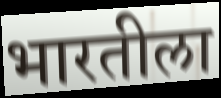
भारतीला